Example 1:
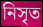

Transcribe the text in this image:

নিসৃত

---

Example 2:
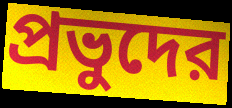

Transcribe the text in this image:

প্রভুদের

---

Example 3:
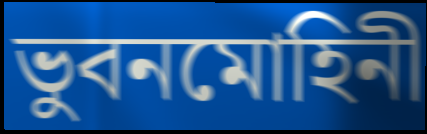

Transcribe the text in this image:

ভুবনমোহিনী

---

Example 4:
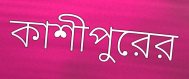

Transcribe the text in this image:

কাশীপুরের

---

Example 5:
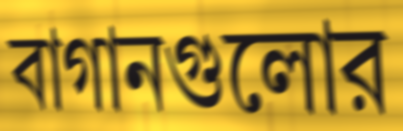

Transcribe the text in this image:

বাগানগুলোর